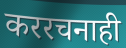
कररचनाही